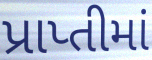
પ્રાપ્તીમાં